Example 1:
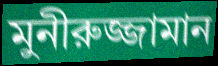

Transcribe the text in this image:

মুনীরুজ্জামান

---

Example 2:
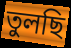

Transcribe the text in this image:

তুলছি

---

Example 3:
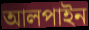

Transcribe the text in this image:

আলপাইন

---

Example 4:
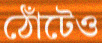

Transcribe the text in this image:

ঠোঁটেও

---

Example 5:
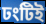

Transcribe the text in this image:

ঢংটিই